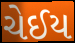
ચેઈય